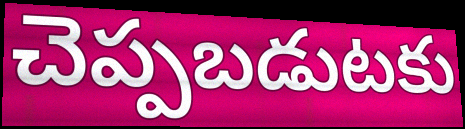
చెప్పబడుటకు